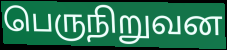
பெருநிறுவன